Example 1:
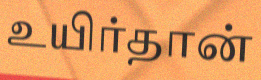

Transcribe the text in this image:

உயிர்தான்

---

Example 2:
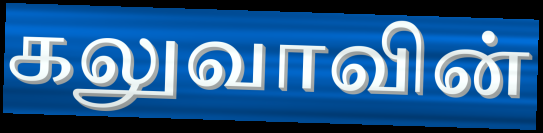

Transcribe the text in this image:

கலுவாவின்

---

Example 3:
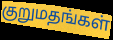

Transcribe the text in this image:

குறுமதங்கள்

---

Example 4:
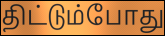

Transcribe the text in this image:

திட்டும்போது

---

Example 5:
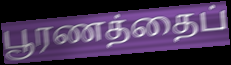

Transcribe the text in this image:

பூரணத்தைப்